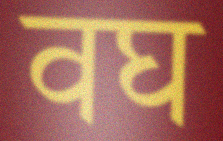
वघ